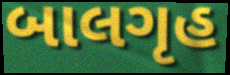
બાલગૃહ